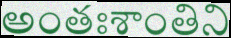
అంతఃశాంతిని